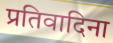
प्रतिवादिना